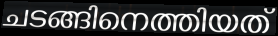
ചടങ്ങിനെത്തിയത്